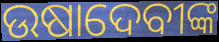
ଉଷାଦେବୀଙ୍କ